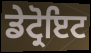
ਡੇਟ੍ਰੋਇਟ